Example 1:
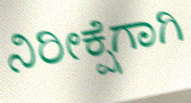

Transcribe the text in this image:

ನಿರೀಕ್ಷೆಗಾಗಿ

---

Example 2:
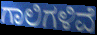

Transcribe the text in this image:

ಗಾಲಿಗಳಿವೆ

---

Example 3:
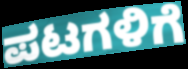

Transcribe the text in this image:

ಪಟಗಳಿಗೆ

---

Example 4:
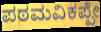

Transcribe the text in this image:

ಪಠಮವಿಕಪ್ಪೇ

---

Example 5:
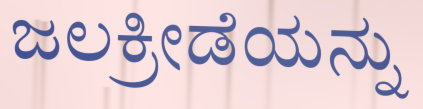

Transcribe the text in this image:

ಜಲಕ್ರೀಡೆಯನ್ನು